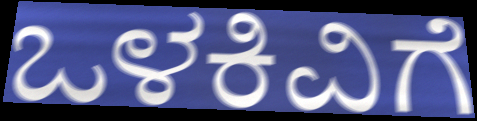
ಒಳಕಿವಿಗೆ